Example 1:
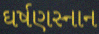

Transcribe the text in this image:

ઘર્ષણસ્નાન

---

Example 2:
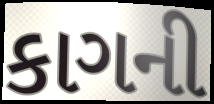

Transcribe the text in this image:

કાગની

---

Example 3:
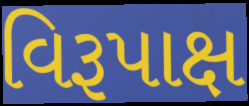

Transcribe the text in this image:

વિરૂપાક્ષ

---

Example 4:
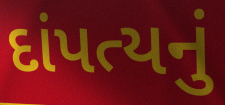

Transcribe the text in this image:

દાંપત્યનું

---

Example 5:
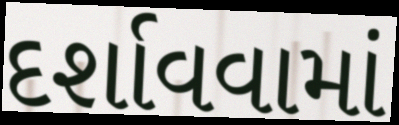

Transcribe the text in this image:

દર્શાવવામાં